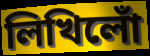
লিখিলোঁ